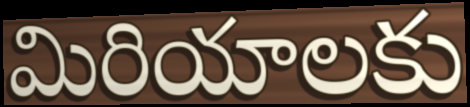
మిరియాలకు